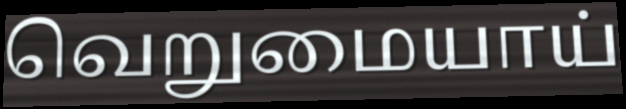
வெறுமையாய்